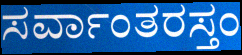
ಸರ್ವಾಂತರಸ್ತಂ